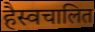
हैस्वचालित